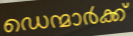
ഡെന്മാർക്ക്